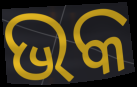
ଭକ